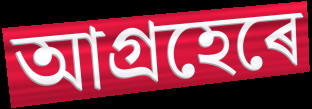
আগ্ৰহেৰে